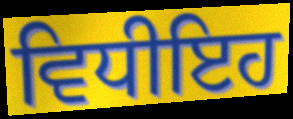
ਵਿਧੀਇਹ